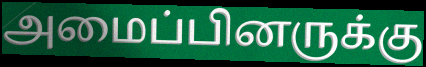
அமைப்பினருக்கு